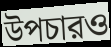
উপচারও